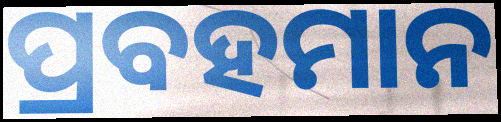
ପ୍ରବହମାନ